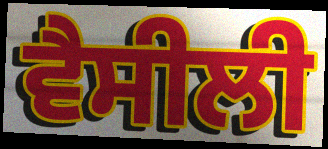
ਵੈਸੀਲੀ